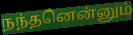
நந்தனென்னும்